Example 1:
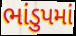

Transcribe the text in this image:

ભાંડુપમાં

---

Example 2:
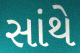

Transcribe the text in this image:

સાંથે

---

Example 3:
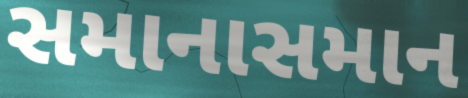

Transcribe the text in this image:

સમાનાસમાન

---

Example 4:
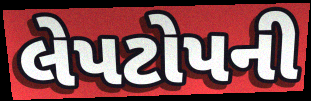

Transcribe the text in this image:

લેપટોપની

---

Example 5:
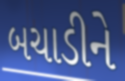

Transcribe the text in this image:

બચાડીને